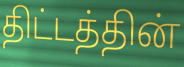
திட்டத்தின்